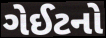
ગેઈટનો